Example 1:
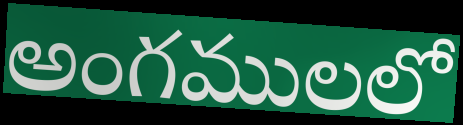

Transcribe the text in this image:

అంగములలో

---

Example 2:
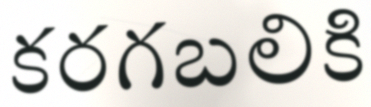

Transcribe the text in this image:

కరగబలికి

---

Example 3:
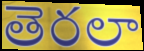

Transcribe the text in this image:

తెరలా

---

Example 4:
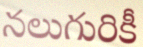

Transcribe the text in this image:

నలుగురికీ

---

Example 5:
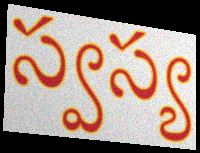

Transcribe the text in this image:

స్వస్య